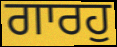
ਗਾਰਹੁ